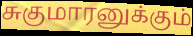
சுகுமாரனுக்கும்